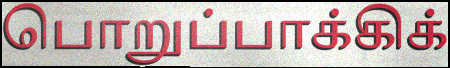
பொறுப்பாக்கிக்